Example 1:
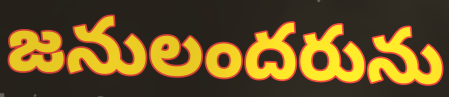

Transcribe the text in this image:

జనులందరును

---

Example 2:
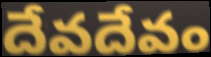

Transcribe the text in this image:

దేవదేవం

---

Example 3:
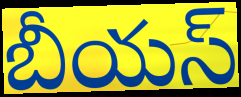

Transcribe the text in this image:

బీయస్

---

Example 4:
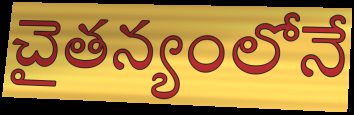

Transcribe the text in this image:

చైతన్యంలోనే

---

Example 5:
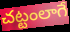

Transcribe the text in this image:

చట్టంలాగే